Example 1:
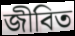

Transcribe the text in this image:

জীবিত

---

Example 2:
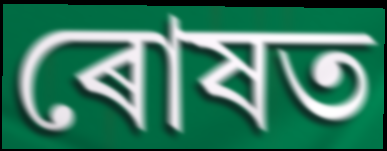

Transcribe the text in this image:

ৰোষত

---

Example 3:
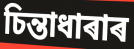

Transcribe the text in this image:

চিন্তাধাৰাৰ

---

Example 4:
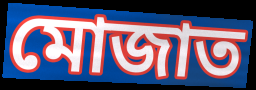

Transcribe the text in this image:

মোজাত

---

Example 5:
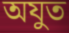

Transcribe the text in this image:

অযুত